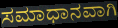
ಸಮಾಧಾನವಾಗಿ